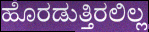
ಹೊರಡುತ್ತಿರಲಿಲ್ಲ